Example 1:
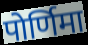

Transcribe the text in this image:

पोर्णिमा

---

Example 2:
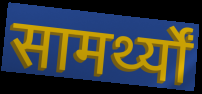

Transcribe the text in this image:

सामर्थ्यों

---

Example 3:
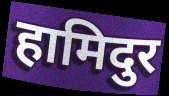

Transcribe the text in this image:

हामिदुर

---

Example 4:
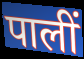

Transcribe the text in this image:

पालीं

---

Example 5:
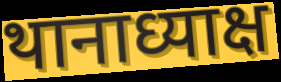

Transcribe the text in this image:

थानाध्याक्ष